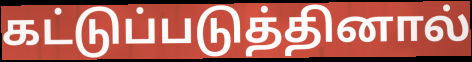
கட்டுப்படுத்தினால்